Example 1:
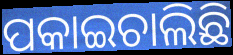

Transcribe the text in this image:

ପକାଇଚାଲିଛି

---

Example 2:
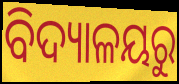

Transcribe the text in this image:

ବିଦ୍ୟାଳୟରୁ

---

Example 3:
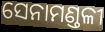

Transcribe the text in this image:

ସେନାମଣ୍ଡଳୀ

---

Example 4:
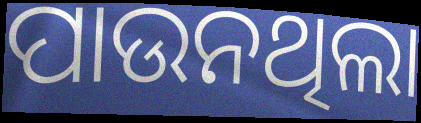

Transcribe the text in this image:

ପାଉନଥିଲା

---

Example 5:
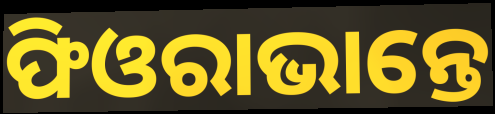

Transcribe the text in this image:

ଫିଓରାଭାନ୍ତେ